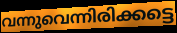
വന്നുവെന്നിരിക്കട്ടെ